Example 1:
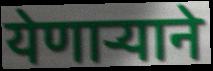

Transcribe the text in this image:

येणाऱ्याने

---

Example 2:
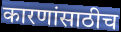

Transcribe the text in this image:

कारणांसाठीच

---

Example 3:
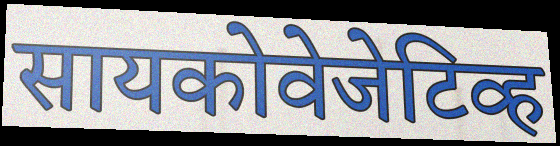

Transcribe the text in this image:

सायकोवेजेटिव्ह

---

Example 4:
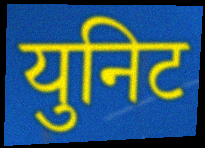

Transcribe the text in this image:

युनिट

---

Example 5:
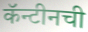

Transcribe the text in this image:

कॅन्टीनची